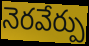
నెరవేర్పు